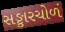
સઙ્કારચોળં